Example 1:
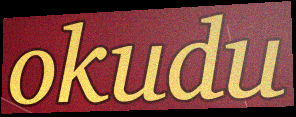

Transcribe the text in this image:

okudu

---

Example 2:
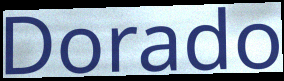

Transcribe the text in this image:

Dorado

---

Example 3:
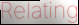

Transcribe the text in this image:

Relating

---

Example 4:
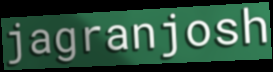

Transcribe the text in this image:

jagranjosh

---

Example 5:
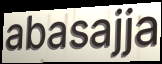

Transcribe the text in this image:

abasajja